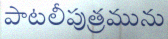
పాటలీపుత్రమును